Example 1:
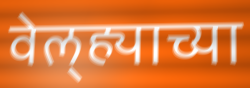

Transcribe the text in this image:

वेल्ह्याच्या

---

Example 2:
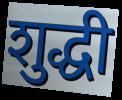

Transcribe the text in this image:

शुद्धी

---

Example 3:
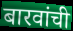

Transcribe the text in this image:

बारवांची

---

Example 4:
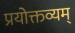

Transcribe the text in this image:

प्रयोक्तव्यम्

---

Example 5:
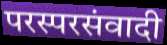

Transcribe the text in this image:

परस्परसंवादी